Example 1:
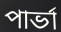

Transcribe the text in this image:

পার্ভা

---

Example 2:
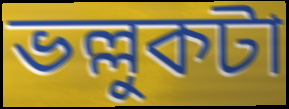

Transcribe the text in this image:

ভল্লুকটা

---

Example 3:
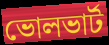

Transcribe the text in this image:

ভোলভার্ট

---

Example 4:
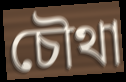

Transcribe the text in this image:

চৌথা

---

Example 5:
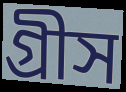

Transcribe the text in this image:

গ্রীস